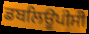
ਡਬਲਿਊਪੀਸੀ